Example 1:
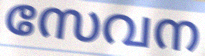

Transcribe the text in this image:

സേവന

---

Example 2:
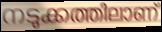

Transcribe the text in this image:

നടുക്കത്തിലാണ്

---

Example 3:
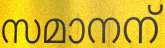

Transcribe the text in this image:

സമാനന്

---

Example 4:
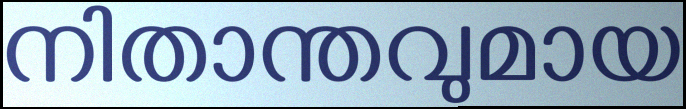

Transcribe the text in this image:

നിതാന്തവുമായ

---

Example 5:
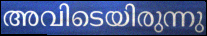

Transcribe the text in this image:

അവിടെയിരുന്നു